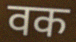
वक